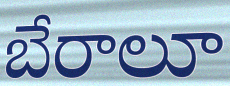
బేరాలూ